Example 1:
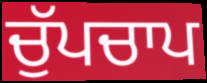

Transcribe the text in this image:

ਚੁੱਪਚਾਪ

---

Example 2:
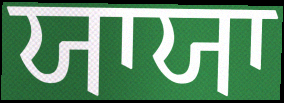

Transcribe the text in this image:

ਯਾਯਾ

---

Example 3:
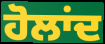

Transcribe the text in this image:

ਹੋਲਾਂਦ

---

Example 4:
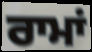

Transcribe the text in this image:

ਰਾਮਾਂ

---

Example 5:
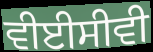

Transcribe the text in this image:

ਵੀਈਸੀਵੀ